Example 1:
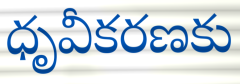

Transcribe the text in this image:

ధృవీకరణకు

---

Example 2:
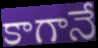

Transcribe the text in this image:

కాగానే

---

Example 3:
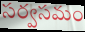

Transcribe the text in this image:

సర్వసమం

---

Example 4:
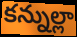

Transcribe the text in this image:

కన్నుల్లా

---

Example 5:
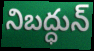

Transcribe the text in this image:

నిబద్ధున్